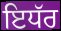
ਇਧੱਰ